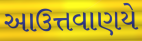
આઉત્તવાણયે